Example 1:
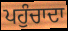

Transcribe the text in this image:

ਪਹੁੰਚਾਦਾ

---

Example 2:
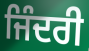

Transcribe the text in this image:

ਜਿੰਦਰੀ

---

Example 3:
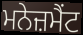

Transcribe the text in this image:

ਮਨੇਜ਼ਮੈਂਟ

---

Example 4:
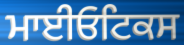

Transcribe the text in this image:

ਮਾਈਓਟਿਕਸ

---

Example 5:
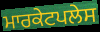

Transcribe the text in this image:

ਮਾਰਕੇਟਪਲੇਸ